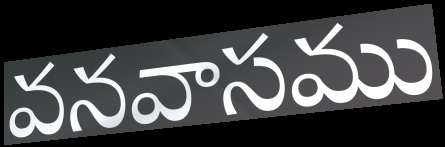
వనవాసము